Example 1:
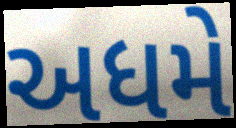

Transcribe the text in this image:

અધમે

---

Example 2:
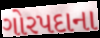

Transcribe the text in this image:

ગોરપદાના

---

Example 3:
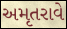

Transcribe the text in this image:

અમૃતરાવે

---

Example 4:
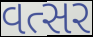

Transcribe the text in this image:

વત્સર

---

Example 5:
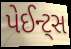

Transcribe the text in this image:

પેઈન્ટ્સ